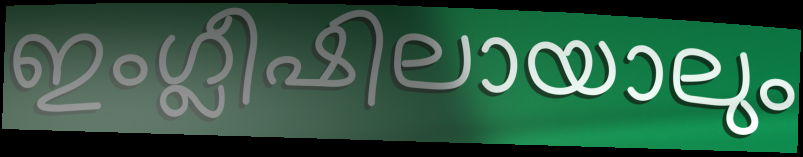
ഇംഗ്ലീഷിലായാലും